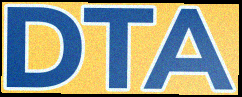
DTA